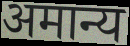
अमान्य